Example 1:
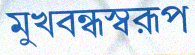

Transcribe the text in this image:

মুখবন্ধস্বরূপ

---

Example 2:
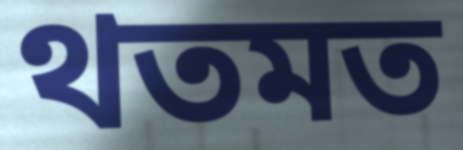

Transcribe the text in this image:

থতমত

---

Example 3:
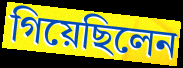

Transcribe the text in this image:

গিয়েছিলেন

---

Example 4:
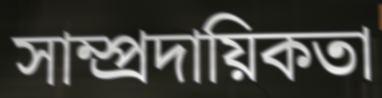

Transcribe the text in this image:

সাম্প্রদায়িকতা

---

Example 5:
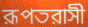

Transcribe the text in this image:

রূপতরাসী